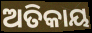
ଅତିକାୟ